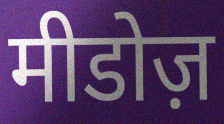
मीडोज़